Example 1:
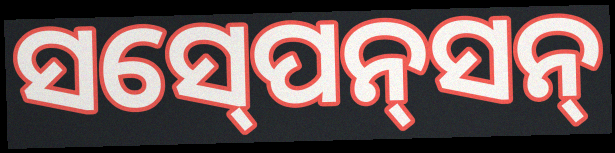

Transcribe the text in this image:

ସସ୍‍ପେନ୍‍ସନ୍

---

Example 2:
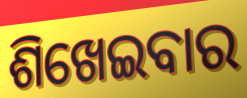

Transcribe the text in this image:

ଶିଖେଇବାର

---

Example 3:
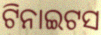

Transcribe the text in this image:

ଟିନାଇଟସ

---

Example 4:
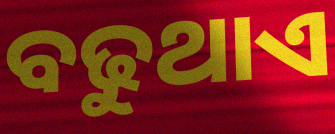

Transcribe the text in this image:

ବଢୁଥାଏ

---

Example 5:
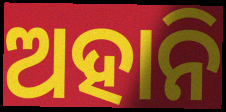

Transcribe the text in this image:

ଅହାନି